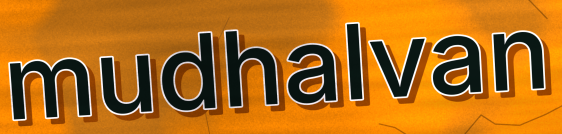
mudhalvan